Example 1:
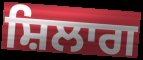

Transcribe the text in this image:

ਸ਼ਿਲਾਗ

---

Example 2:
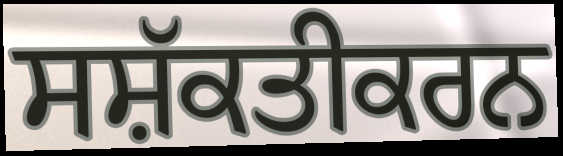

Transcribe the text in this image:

ਸਸ਼ੱਕਤੀਕਰਨ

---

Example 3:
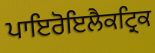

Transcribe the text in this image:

ਪਾਇਰੋਇਲੈਕਟ੍ਰਿਕ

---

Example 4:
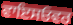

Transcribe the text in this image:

ਵਾਇਸਓਵਰ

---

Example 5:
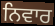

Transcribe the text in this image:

ਨਿਵਾਰ